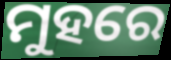
ମୁହରେ